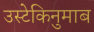
उस्टेकिनुमाब